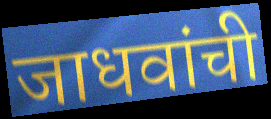
जाधवांची